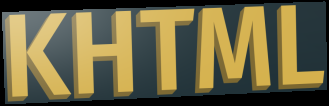
KHTML